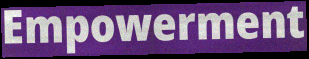
Empowerment